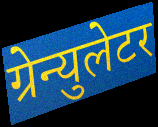
ग्रेन्युलेटर